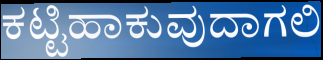
ಕಟ್ಟಿಹಾಕುವುದಾಗಲಿ